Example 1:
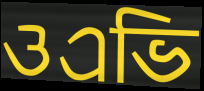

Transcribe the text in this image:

ওএভি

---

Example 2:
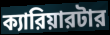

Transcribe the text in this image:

ক্যারিয়ারটার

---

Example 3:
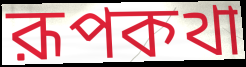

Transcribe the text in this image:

রূপকথা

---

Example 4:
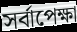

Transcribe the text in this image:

সর্বাপেক্ষা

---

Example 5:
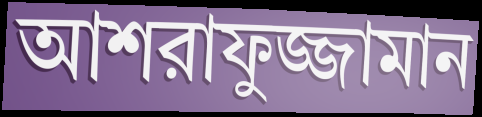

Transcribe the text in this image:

আশরাফুজ্জামান